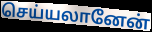
செய்யலானேன்